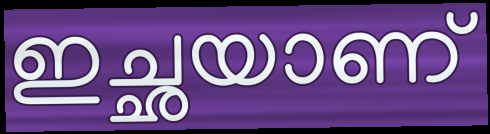
ഇച്ഛയാണ്